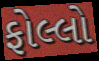
ફોલ્લો